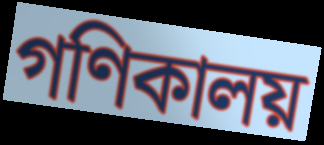
গণিকালয়